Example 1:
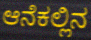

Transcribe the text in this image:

ಆನೆಕಲ್ಲಿನ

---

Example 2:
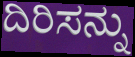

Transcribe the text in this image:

ದಿರಿಸನ್ನು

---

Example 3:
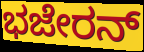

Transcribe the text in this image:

ಭಜೇರನ್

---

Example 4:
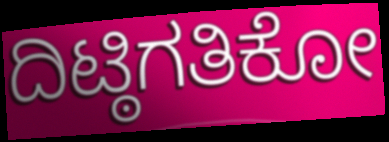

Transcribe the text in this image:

ದಿಟ್ಠಿಗತಿಕೋ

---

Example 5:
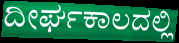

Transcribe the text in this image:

ದೀರ್ಘಕಾಲದಲ್ಲಿ